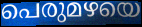
പെരുമഴയെ